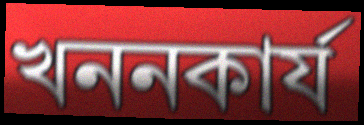
খননকার্য